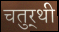
चतुर्थी